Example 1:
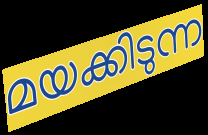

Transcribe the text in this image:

മയക്കിടുന്ന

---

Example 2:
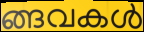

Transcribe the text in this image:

ങ്ങവകൾ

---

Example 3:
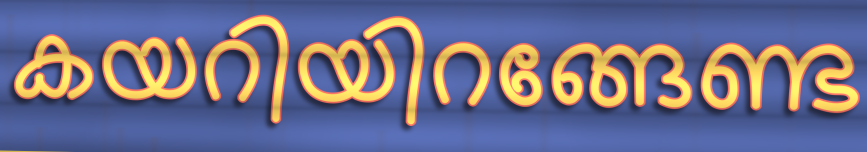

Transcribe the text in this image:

കയറിയിറങ്ങേണ്ട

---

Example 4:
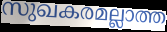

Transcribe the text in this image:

സുഖകരമല്ലാത്ത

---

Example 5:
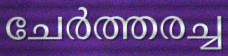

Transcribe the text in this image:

ചേർത്തരച്ച